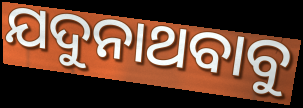
ଯଦୁନାଥବାବୁ